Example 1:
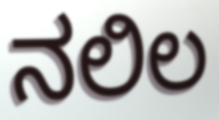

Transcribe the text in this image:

ನಲಿಲ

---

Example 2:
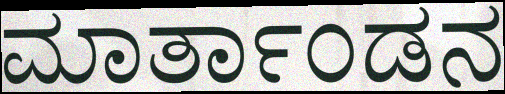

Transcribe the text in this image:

ಮಾರ್ತಾಂಡನ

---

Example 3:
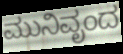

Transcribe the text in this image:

ಮುನಿವೃಂದ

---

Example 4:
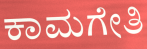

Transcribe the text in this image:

ಕಾಮಗೇತಿ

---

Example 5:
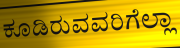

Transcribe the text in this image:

ಕೂಡಿರುವವರಿಗೆಲ್ಲಾ